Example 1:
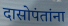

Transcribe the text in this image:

दासोपंतांना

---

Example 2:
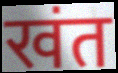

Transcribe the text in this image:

खंत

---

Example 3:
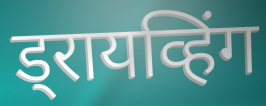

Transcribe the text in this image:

ड्रायव्हिंग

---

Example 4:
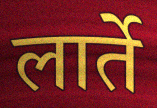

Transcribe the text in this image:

लार्ते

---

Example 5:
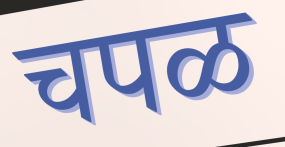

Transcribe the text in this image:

चपळ